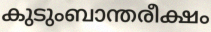
കുടുംബാന്തരീക്ഷം